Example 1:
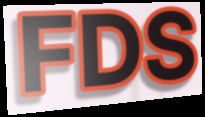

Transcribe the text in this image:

FDS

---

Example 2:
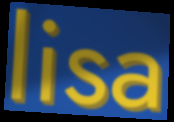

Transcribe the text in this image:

lisa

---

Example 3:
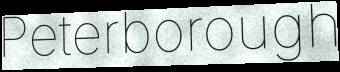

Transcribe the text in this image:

Peterborough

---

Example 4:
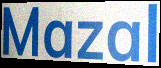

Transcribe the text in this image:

Mazal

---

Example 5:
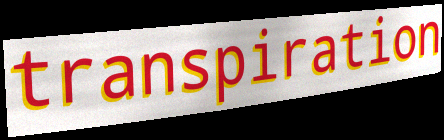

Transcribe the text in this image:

transpiration